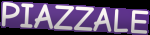
PIAZZALE